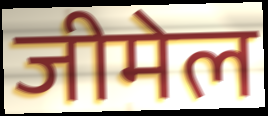
जीमेल